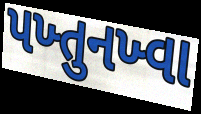
પખ્તુનખ્વા